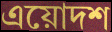
এয়োদশ